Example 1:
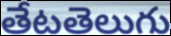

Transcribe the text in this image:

తేటతెలుగు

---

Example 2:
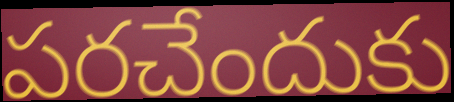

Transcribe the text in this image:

పరచేందుకు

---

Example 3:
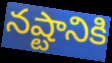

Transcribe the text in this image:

నష్టానికి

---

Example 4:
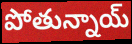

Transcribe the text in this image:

పోతున్నాయ్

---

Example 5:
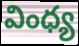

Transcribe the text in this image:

వింధ్య